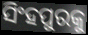
ସିଂହପୁରକୁ